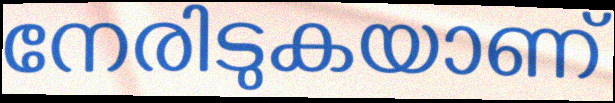
നേരിടുകയാണ്